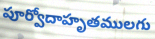
పూర్వోదాహృతములగు